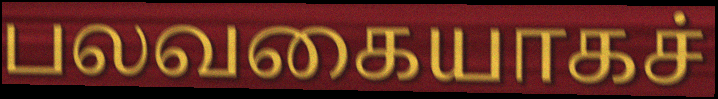
பலவகையாகச்